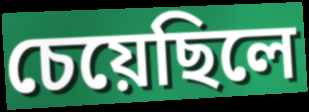
চেয়েছিলে